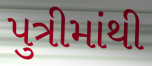
પુત્રીમાંથી